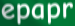
epapr